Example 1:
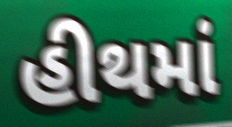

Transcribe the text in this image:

હીથમાં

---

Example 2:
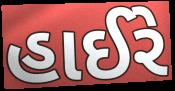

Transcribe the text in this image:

હાઈરે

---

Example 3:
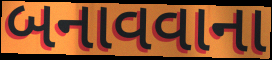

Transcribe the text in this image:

બનાવવાના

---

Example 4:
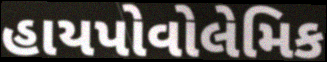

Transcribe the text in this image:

હાયપોવોલેમિક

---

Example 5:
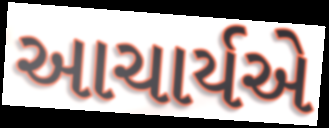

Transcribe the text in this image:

આચાર્યએ